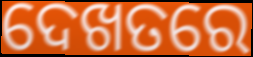
ଦେଖତରେ